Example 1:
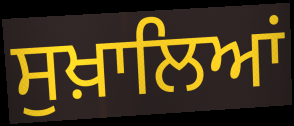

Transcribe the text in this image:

ਸੁਖ਼ਾਲਿਆਂ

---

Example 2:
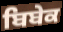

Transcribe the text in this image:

ਬਿਬੇਕ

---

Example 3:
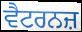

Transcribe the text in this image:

ਵੈਟਰਨਜ਼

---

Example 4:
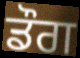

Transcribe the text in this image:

ਡੌਗ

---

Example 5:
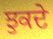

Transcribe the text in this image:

ਝੁਕਦੇ